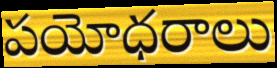
పయోధరాలు